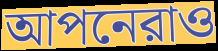
আপনেরাও